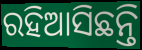
ରହିଆସିଛନ୍ତି